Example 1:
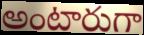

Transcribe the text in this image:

అంటారుగా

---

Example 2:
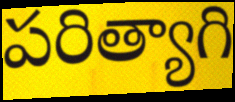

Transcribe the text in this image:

పరిత్యాగి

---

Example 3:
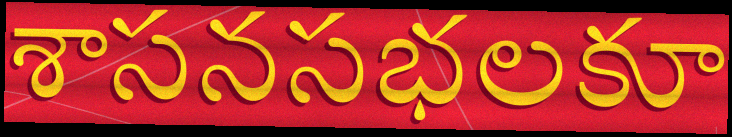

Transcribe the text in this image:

శాసనసభలకూ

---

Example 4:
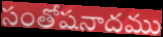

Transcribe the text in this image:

సంతోషనాదము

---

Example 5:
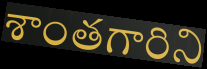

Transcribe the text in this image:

శాంతగారిని